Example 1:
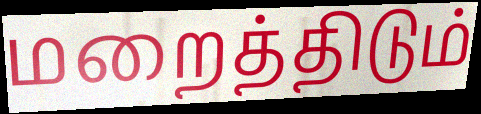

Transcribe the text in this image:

மறைத்திடும்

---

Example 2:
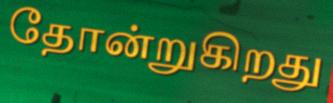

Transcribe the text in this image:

தோன்றுகிறது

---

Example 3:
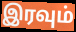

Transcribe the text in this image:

இரவும்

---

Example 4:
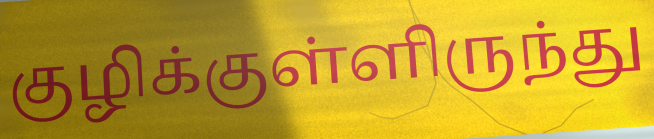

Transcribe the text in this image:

குழிக்குள்ளிருந்து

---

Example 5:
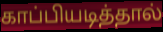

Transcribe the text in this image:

காப்பியடித்தால்